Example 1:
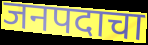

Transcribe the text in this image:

जनपदाचा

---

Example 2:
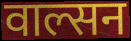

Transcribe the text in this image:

वाल्सन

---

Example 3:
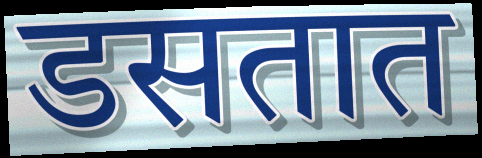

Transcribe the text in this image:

डसतात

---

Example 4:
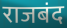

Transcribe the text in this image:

राजबंद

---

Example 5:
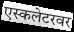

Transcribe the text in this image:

एस्कलेटरवर